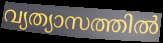
വ്യത്യാസത്തിൽ